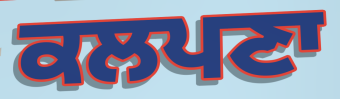
ਕਲਪਣਾ